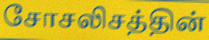
சோசலிசத்தின்